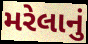
મરેલાનું